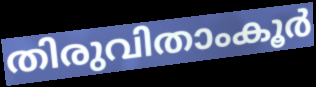
തിരുവിതാംകൂർ